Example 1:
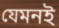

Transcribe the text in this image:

যেমনই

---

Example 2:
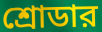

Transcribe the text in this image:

শ্রোডার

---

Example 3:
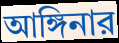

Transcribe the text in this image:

আঙ্গিনার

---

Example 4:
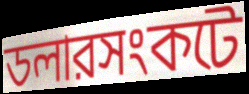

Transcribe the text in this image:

ডলারসংকটে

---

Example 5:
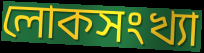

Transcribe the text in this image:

লোকসংখ্যা